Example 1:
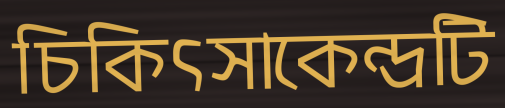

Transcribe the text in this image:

চিকিৎসাকেন্দ্রটি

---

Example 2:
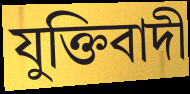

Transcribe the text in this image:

যুক্তিবাদী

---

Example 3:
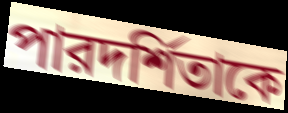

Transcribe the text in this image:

পারদর্শিতাকে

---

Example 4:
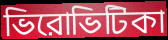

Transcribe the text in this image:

ভিরোভিটিকা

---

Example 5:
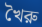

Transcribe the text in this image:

খৈরু